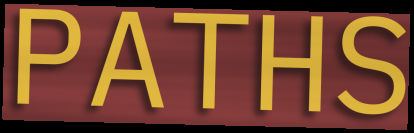
PATHS